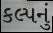
કલ્પનું